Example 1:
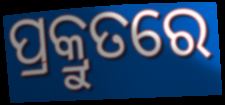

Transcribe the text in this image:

ପ୍ରକ୍ରୁତରେ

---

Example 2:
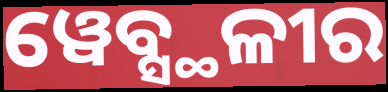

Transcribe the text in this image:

ୱେବ୍ସ୍ଥଳୀର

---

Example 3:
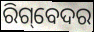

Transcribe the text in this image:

ରିଗ୍‌ବେଦର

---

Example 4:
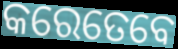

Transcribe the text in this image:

କରେତେବେ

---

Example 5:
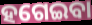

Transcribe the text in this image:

ହଗେଇବା